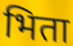
भिता